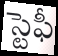
స్టెఫీ